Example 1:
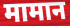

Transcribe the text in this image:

मामान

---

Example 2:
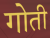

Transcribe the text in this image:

गोती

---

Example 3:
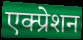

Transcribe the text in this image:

एक्प्रेशन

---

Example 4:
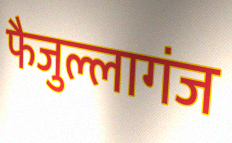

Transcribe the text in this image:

फैजुल्लागंज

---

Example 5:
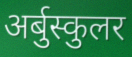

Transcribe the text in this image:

अर्बुस्कुलर